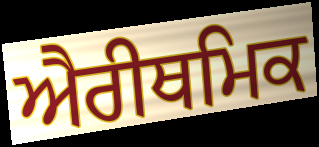
ਐਰੀਥਮਿਕ